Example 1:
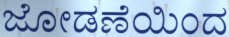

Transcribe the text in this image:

ಜೋಡಣೆಯಿಂದ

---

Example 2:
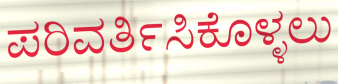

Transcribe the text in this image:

ಪರಿವರ್ತಿಸಿಕೊಳ್ಳಲು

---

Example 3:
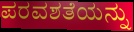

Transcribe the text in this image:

ಪರವಶತೆಯನ್ನು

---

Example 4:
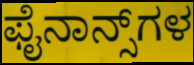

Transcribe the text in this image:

ಫೈನಾನ್ಸ್‌ಗಳ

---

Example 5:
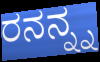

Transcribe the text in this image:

ರನನ್ನ್ನ